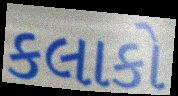
કલાકો